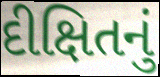
દીક્ષિતનું